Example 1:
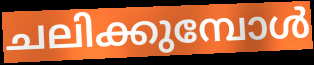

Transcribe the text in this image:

ചലിക്കുമ്പോൾ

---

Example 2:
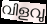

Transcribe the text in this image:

വിളവു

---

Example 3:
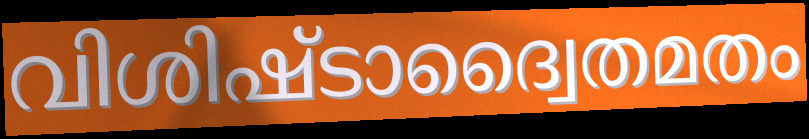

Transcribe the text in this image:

വിശിഷ്ടാദ്വൈതമതം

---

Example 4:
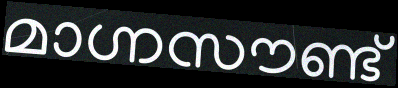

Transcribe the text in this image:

മാഗ്നസൗണ്ട്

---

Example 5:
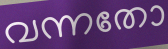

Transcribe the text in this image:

വന്നതോ